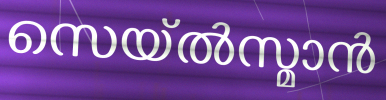
സെയ്ൽസ്മാൻ